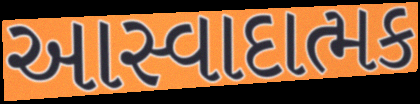
આસ્વાદાત્મક